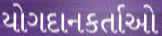
યોગદાનકર્તાઓ